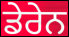
ਡੇਰੇਨ